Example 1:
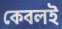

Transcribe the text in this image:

কেবলই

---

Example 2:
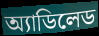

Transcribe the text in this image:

অ্যাডিলেড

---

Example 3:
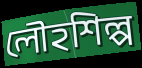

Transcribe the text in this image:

লৌহশিল্প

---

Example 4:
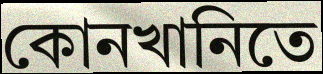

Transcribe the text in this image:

কোনখানিতে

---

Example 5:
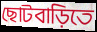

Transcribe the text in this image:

ছোটবাড়িতে